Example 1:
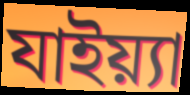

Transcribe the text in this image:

যাইয়্যা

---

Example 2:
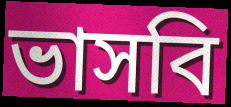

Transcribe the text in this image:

ভাসবি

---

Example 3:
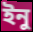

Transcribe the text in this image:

ইনু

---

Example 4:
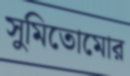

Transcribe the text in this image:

সুমিতোমোর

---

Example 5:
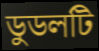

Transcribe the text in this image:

ডুডলটি